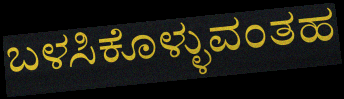
ಬಳಸಿಕೊಳ್ಳುವಂತಹ